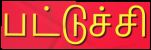
பட்டுச்சி